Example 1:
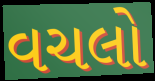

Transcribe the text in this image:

વચલો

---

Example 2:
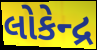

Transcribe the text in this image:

લોકેન્દ્ર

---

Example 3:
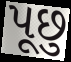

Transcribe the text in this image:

પૂછુ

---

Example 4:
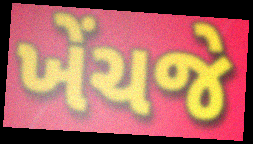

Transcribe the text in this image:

ખેંચજે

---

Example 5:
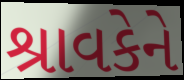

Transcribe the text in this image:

શ્રાવકેને